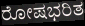
ರೋಷಭರಿತ